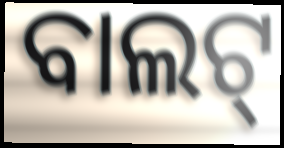
ବାଲଟ୍